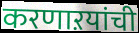
करणाऱयांची